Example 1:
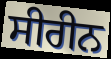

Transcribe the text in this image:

ਸੀਰੀਨ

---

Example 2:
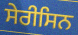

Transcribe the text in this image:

ਸੇਰੀਸਿਨ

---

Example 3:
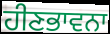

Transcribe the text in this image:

ਹੀਣਭਾਵਨਾ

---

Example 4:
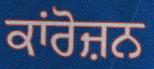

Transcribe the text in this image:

ਕਾਂਰੋਜ਼ਨ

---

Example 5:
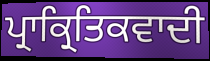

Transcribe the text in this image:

ਪ੍ਰਾਕ੍ਰਿਤਿਕਵਾਦੀ